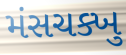
મંસચક્ખુ